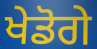
ਖੇਡੋਗੇ